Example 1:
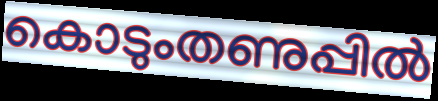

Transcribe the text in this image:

കൊടുംതണുപ്പിൽ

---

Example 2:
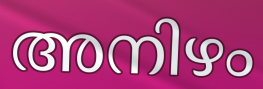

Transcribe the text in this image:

അനിഴം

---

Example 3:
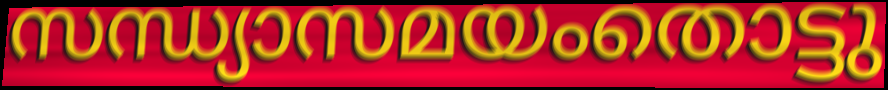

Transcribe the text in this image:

സന്ധ്യാസമയംതൊട്ടു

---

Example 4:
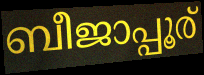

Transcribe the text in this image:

ബീജാപ്പൂര്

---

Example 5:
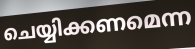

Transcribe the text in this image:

ചെയ്യിക്കണമെന്ന